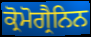
ਕ੍ਰੋਮੋਗ੍ਰੈਨਿਨ